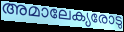
അമാലേക്യരോടു